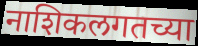
नाशिकलगतच्या